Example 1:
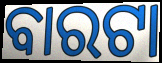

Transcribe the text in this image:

ବାରଟା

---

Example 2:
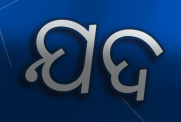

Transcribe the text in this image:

ଯଦ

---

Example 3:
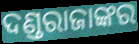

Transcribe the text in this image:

ଦଣ୍ଡରାଜାଙ୍କର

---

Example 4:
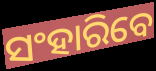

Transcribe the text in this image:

ସଂହାରିବେ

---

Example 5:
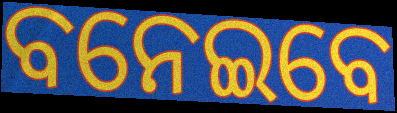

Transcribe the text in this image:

ବନେଇବେ